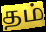
தம்